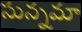
సున్నమా